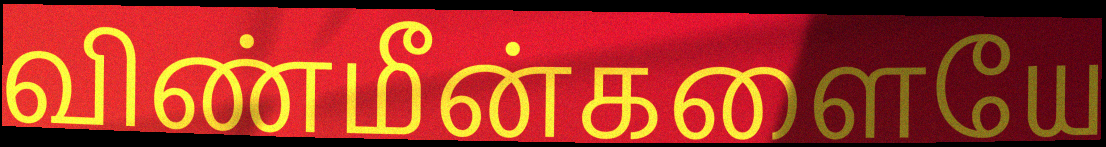
விண்மீன்களையே